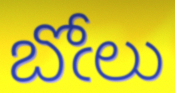
బోఁలు